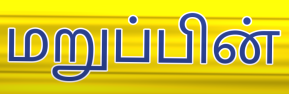
மறுப்பின்